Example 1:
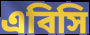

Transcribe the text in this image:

এবিসি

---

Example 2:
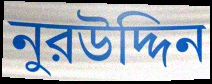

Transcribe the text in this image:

নুরউদ্দিন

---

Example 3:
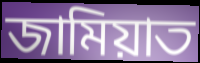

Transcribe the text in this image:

জামিয়াত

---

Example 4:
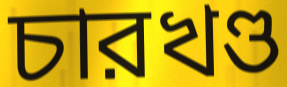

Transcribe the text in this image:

চারখণ্ড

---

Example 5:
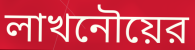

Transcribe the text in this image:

লাখনৌয়ের